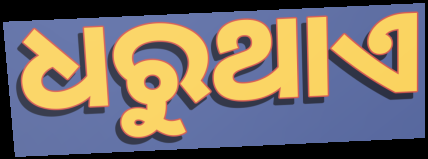
ଧରୁଥାଏ